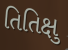
તિતિક્ષુ